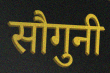
सौगुनी